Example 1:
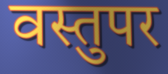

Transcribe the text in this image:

वस्तुपर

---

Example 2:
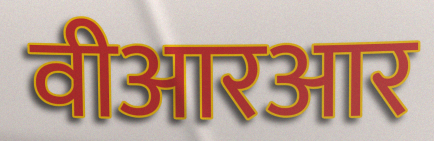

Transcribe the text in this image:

वीआरआर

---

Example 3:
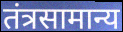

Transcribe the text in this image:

तंत्रसामान्य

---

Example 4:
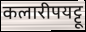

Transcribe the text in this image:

कलारीपयट्टू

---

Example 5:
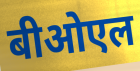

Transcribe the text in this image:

बीओएल